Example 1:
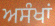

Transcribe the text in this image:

ਅਸੰਖਾਂ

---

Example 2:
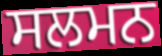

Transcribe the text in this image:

ਸਲਮਨ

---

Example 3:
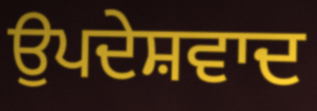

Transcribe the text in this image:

ਉਪਦੇਸ਼ਵਾਦ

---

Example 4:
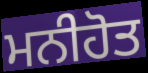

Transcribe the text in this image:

ਮਨੀਹੋਤ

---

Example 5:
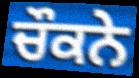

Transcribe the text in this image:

ਚੌਕਨੇ